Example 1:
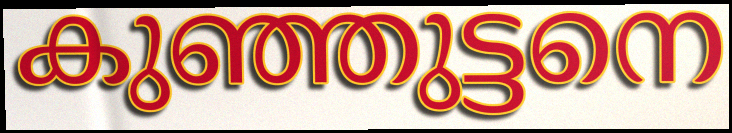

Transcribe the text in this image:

കുഞ്ഞുട്ടനെ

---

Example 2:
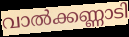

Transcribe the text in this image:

വാൽക്കണ്ണാടി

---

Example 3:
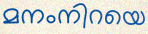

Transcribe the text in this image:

മനംനിറയെ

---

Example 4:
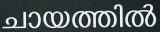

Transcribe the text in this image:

ചായത്തിൽ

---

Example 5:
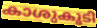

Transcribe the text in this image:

കാശുകൂടി